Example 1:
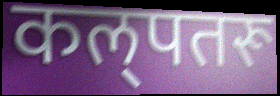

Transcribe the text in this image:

कल्पतरू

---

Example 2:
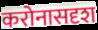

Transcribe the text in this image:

करोनासदृश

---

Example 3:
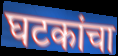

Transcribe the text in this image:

घटकांचा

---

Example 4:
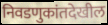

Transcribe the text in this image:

निवडणुकांतदेखील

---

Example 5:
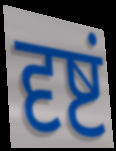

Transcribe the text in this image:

दृष्टं